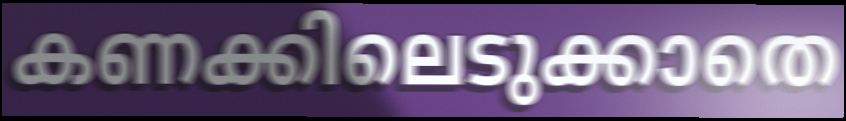
കണക്കിലെടുക്കാതെ